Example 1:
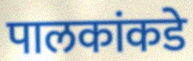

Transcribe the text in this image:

पालकांकडे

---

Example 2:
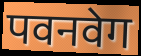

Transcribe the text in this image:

पवनवेग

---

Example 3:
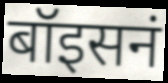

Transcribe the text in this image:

बॉइसनं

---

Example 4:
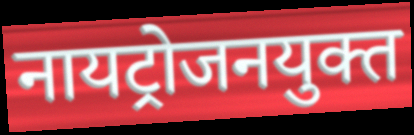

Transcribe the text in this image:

नायट्रोजनयुक्त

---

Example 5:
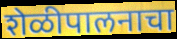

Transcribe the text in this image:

शेळीपालनाचा